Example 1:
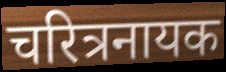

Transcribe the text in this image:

चरित्रनायक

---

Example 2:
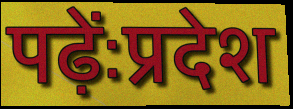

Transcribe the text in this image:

पढ़ेंःप्रदेश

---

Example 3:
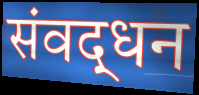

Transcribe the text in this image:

संवद्धन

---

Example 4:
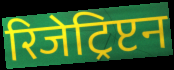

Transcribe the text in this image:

रिजेट्रिप्टन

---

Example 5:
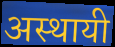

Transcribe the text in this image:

अस्थायी